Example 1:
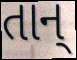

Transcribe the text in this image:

તાન્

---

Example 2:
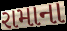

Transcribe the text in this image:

રામાના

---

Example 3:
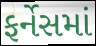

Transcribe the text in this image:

ફર્નેસમાં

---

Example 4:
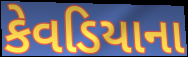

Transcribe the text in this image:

કેવડિયાના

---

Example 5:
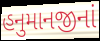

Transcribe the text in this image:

હનુમાનજીનાં